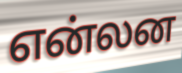
என்லன